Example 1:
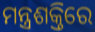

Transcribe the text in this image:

ମନ୍ତ୍ରଶକ୍ତିରେ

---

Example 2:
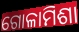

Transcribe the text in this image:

ଗୋଳାମିଶା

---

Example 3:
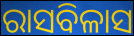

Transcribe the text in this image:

ରାସବିଳାସ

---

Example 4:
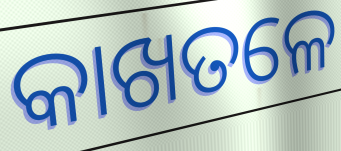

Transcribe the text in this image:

କାଖତଳେ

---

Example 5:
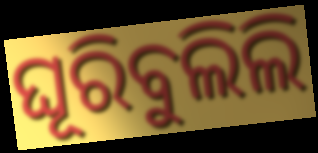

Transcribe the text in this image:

ଘୂରିବୁଲିଲି